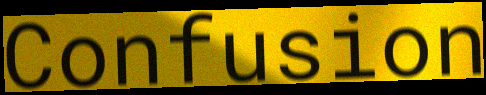
Confusion